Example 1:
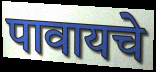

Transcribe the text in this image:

पावायचे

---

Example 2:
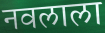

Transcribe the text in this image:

नवलाला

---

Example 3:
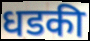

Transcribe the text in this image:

धडकी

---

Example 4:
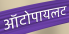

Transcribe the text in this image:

ऑटोपायलट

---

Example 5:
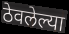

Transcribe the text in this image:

ठेवलेल्या